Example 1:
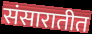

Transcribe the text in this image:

संसारातीत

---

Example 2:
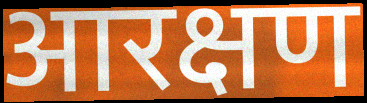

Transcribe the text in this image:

आरक्षण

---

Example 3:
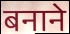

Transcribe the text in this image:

बनाने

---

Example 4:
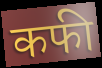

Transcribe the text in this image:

कफी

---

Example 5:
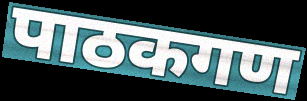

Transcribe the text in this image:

पाठकगण